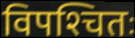
विपश्चितः